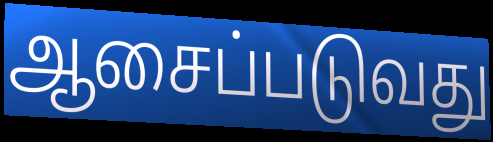
ஆசைப்படுவது